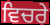
ਵਿਚਰੇ